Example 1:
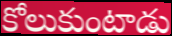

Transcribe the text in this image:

కోలుకుంటాడు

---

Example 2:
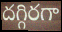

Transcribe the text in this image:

దగ్గిరగా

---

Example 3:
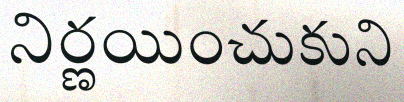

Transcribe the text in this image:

నిర్ణయించుకుని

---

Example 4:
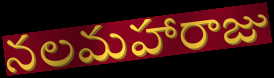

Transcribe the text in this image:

నలమహారాజు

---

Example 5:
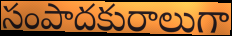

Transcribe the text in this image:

సంపాదకురాలుగా